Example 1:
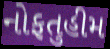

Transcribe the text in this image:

નોફતુહીમ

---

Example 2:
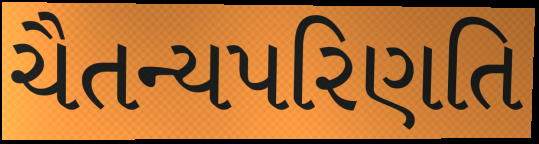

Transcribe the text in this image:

ચૈતન્યપરિણતિ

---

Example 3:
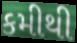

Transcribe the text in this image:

કમીથી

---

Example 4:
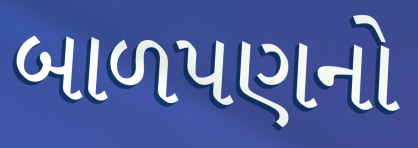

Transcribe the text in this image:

બાળપણનો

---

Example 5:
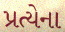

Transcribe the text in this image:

પ્રત્યેના